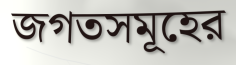
জগতসমূহের